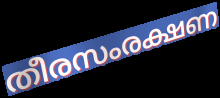
തീരസംരക്ഷണ